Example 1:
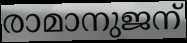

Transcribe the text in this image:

രാമാനുജന്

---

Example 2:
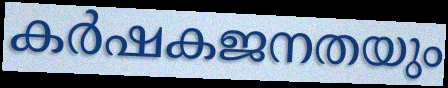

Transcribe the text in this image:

കർഷകജനതയും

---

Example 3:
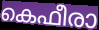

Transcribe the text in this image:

കെഫീരാ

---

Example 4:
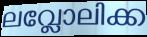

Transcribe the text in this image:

ലവ്ലോലിക്ക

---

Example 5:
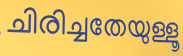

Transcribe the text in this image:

ചിരിച്ചതേയുള്ളൂ